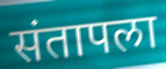
संतापला